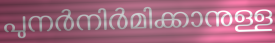
പുനർനിർമിക്കാനുള്ള